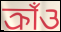
ক্রাঁও